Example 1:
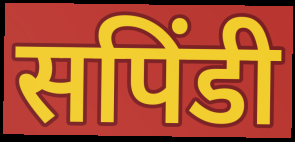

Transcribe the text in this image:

सपिंडी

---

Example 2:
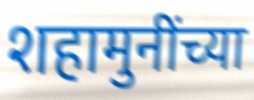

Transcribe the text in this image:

शहामुनींच्या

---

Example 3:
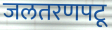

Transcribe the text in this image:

जलतरणपटू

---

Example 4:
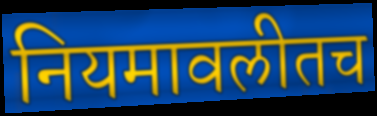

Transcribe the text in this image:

नियमावलीतच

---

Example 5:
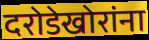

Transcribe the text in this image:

दरोडेखोरांना